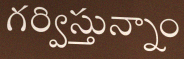
గర్విస్తున్నాం